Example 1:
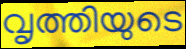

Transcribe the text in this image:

വൃത്തിയുടെ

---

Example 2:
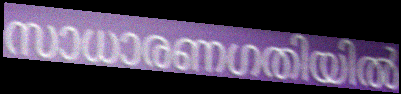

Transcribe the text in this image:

സാധാരണഗതിയിൽ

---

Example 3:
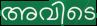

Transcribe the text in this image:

അവിടെ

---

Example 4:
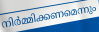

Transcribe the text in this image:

നിർമ്മിക്കണമെന്നും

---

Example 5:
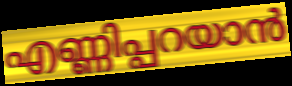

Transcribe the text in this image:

എണ്ണിപ്പറയാൻ